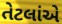
તેટલાંએ